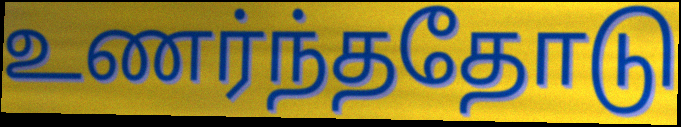
உணர்ந்ததோடு